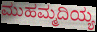
ಮುಹಮ್ಮದಿಯ್ಯ